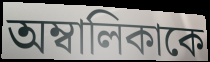
অম্বালিকাকে